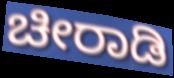
ಚೀರಾಡಿ